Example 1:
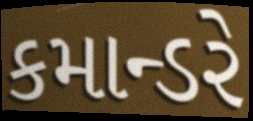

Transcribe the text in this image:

કમાન્ડરે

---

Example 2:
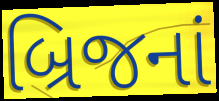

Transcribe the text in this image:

બ્રિજનાં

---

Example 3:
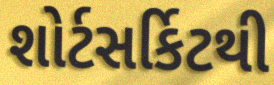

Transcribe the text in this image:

શોર્ટસર્કિટથી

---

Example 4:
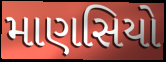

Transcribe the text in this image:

માણસિયો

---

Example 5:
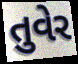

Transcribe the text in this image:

તુવેર